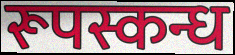
रूपस्कन्ध